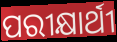
ପରୀକ୍ଷାର୍ଥୀ